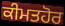
ਕੀਮਤਹੋਰ